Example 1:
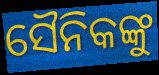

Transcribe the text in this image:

ସୈନିକଙ୍କୁ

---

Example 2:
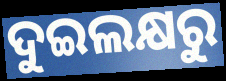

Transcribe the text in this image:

ଦୁଇଲକ୍ଷରୁ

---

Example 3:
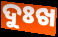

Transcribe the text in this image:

ଦୁଃଖ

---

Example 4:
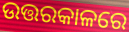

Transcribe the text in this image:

ଉତ୍ତରକାଳରେ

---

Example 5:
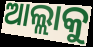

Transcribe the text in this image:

ଆଲ୍ଲାକୁ